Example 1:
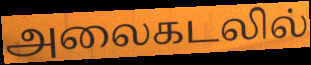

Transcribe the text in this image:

அலைகடலில்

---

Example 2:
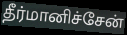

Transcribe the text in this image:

தீர்மானிச்சேன்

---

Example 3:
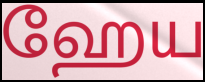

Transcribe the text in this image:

ஹேய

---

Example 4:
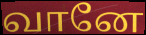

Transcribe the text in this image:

வானே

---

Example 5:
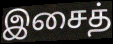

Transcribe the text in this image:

இசைத்